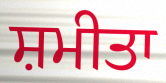
ਸ਼ਮੀਤਾ